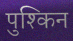
पुश्किन